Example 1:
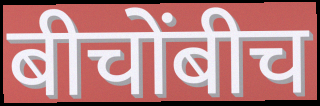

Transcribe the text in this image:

बीचोंबीच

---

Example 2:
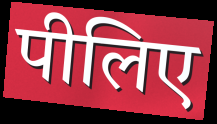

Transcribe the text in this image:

पीलिए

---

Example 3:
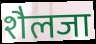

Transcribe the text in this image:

शैलजा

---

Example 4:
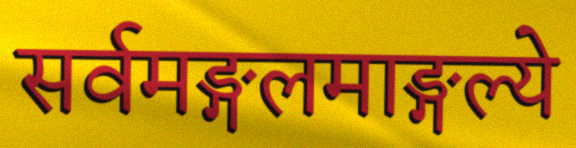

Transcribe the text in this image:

सर्वमङ्गलमाङ्गल्ये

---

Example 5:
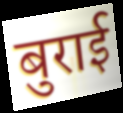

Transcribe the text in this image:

बुराई